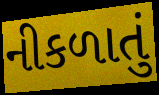
નીકળાતું